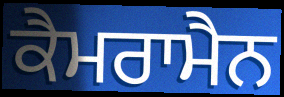
ਕੈਮਰਾਮੈਨ